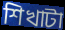
শিখাটা